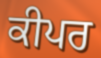
ਕੀਪਰ